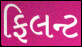
ફિલન્ટ